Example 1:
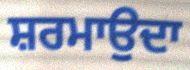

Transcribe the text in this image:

ਸ਼ਰਮਾਉਦਾ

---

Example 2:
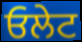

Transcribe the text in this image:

ਓਲੇਟ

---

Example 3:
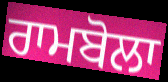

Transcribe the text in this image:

ਰਾਮਬੋਲਾ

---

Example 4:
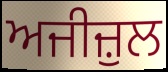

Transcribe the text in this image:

ਅਜੀਜ਼ੁਲ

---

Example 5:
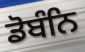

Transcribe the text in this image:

ਡੋਬੰਨਿ